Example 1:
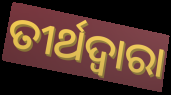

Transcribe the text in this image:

ତୀର୍ଥଦ୍ବାରା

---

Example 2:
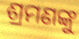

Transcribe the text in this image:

ଶ୍ରମଣଙ୍କୁ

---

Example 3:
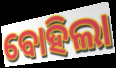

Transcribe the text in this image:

ବୋହିଲା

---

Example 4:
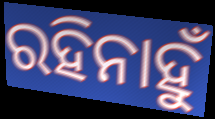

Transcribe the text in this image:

ରହିନାହୁଁ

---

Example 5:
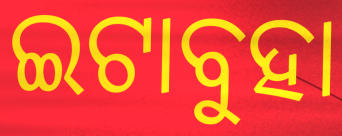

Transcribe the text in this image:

ଇଟାବୁହା